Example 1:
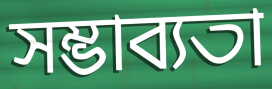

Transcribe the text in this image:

সম্ভাব্যতা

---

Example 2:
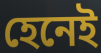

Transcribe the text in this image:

হেনেই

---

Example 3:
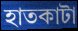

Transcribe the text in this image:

হাতকাটা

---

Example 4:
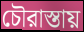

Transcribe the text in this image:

চৌরাস্তায়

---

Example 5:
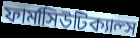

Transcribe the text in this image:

ফার্মাসিউটিক্যাল্স